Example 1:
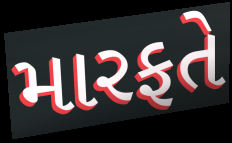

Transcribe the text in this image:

મારફતે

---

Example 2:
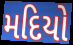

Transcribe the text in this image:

મદિયો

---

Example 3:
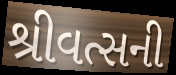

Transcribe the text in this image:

શ્રીવત્સની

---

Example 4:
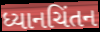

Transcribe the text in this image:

ધ્યાનચિંતન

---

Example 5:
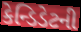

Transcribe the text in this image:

કેન્ડિડેટની